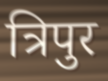
त्रिपुर